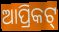
ଆପ୍ରିକଟ୍